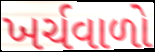
ખર્ચવાળો